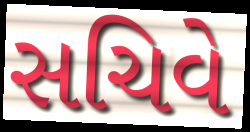
સચિવે